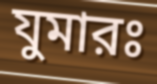
যুমারঃ